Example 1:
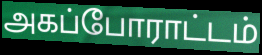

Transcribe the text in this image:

அகப்போராட்டம்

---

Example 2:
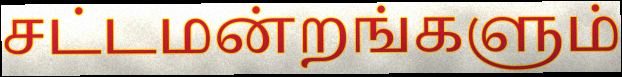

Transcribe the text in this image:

சட்டமன்றங்களும்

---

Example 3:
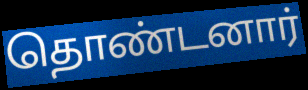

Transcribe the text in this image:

தொண்டனார்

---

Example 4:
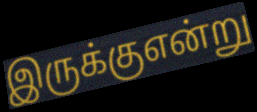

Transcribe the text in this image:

இருக்குஎன்று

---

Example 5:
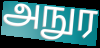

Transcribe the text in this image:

அநுர